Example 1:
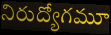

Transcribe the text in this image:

నిరుద్యోగమూ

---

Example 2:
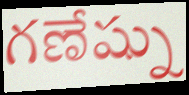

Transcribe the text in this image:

గణేష్ను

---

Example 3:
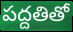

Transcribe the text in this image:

పద్దతితో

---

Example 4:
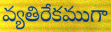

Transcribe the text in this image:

వ్యతిరేకముగా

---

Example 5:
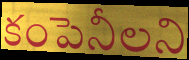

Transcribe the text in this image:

కంపెనీలని